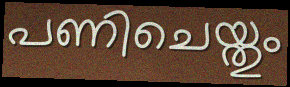
പണിചെയ്തും